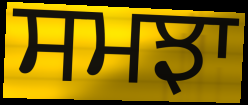
ਸਮਝਾ